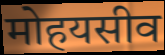
मोहयसीव